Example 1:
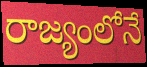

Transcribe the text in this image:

రాజ్యంలోనే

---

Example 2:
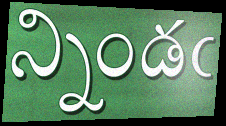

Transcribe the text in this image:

న్నిండఁ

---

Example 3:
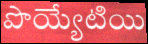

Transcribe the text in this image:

పొయ్యేటియి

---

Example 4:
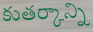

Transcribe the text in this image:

కుతర్కాన్ని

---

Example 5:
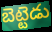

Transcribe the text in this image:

బెట్టెడు